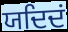
ਯਦਿਦਂ